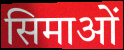
सिमाओं